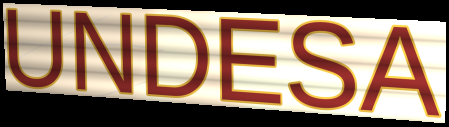
UNDESA